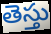
తెస్తు